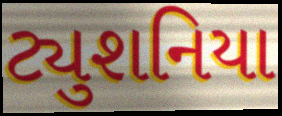
ટ્યુશનિયા